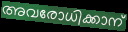
അവരോധിക്കാന്